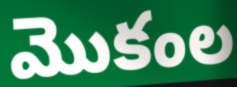
మొకంల